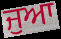
ਜੁਆ